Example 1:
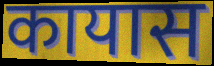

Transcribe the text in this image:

कायास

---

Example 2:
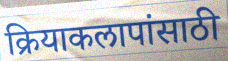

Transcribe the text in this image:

क्रियाकलापांसाठी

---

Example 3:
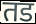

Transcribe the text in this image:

तड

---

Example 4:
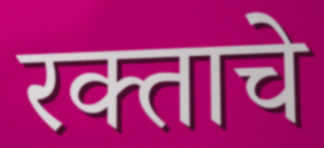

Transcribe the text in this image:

रक्ताचे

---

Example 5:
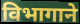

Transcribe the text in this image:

विभागाने